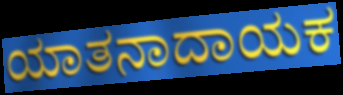
ಯಾತನಾದಾಯಕ